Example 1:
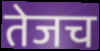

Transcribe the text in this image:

तेजच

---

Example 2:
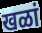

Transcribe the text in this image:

खळां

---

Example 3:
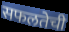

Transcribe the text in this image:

सफलतेची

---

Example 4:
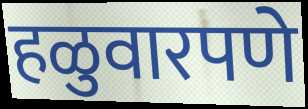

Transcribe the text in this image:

हळुवारपणे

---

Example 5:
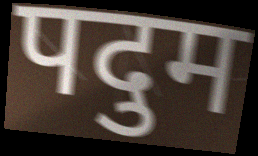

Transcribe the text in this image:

पदुम